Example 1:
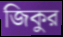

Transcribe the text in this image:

জিকুর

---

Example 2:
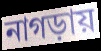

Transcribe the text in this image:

নাগড়ায়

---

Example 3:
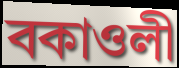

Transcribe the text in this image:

বকাওলী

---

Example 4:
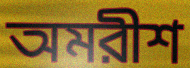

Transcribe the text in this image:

অমরীশ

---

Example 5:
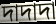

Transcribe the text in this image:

দাদাদা